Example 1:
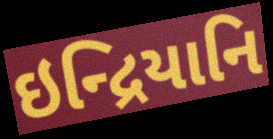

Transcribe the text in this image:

ઇન્દ્રિયાનિ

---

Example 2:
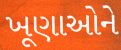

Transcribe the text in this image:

ખૂણાઓને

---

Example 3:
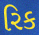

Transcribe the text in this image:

રિક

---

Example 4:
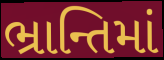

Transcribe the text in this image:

ભ્રાન્તિમાં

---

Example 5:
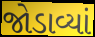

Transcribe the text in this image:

જોડાવ્યાં